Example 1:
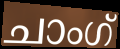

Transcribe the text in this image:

ചാംഗ്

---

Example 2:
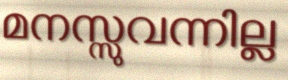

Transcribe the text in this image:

മനസ്സുവന്നില്ല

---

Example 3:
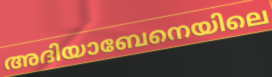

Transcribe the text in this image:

അദിയാബേനെയിലെ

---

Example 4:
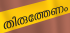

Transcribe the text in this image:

തിരുത്തേണം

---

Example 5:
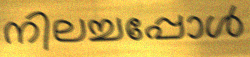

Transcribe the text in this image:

നിലച്ചപ്പോൾ